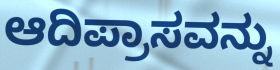
ಆದಿಪ್ರಾಸವನ್ನು